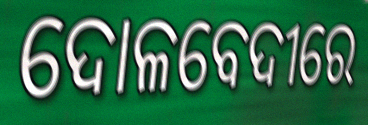
ଦୋଳବେଦୀରେ